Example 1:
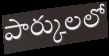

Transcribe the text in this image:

పార్కులలో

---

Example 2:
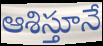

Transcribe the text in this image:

ఆశిస్తూనే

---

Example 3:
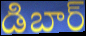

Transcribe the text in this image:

డిబార్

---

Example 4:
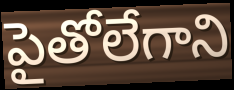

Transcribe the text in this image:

పైతోలేగాని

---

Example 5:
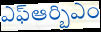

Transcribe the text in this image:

ఎఫ్ఆర్బిఎం